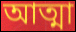
আত্মা